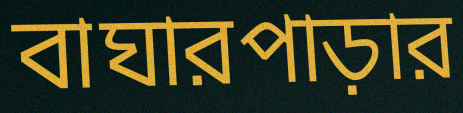
বাঘারপাড়ার